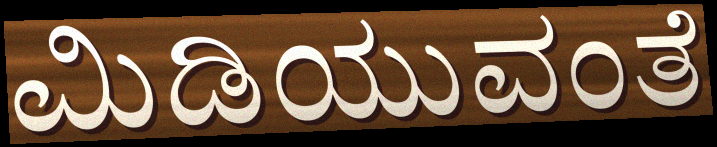
ಮಿಡಿಯುವಂತೆ